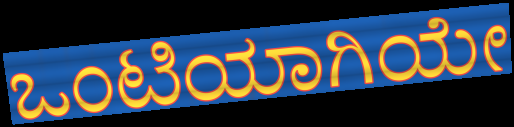
ಒಂಟಿಯಾಗಿಯೇ